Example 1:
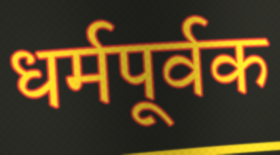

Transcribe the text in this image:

धर्मपूर्वक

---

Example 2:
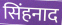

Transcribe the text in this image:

सिंहनाद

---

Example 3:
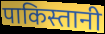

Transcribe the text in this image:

पाकिस्‍तानी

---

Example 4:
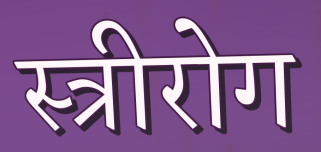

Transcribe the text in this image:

स्त्रीरोग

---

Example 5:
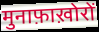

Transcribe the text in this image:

मुनाफ़ाख़ोरों